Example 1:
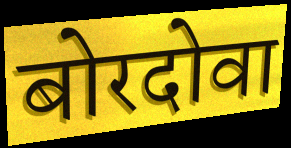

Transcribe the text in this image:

बोरदोवा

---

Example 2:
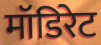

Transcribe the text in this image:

मॉडिरेट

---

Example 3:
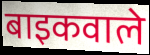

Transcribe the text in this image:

बाइकवाले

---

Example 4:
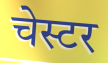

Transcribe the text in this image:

चेस्टर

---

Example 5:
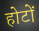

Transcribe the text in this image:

होटों